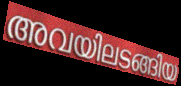
അവയിലടങ്ങിയ